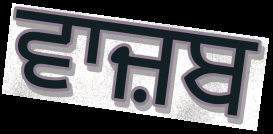
ਵਾਜ਼ਬ